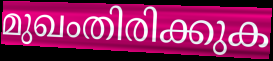
മുഖംതിരിക്കുക